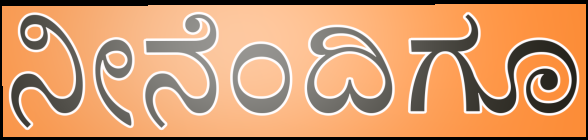
ನೀನೆಂದಿಗೂ